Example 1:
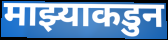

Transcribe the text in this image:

माझ्याकडुन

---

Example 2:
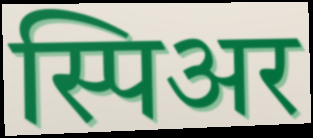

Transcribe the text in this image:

स्पिअर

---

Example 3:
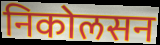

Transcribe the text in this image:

निकोलसन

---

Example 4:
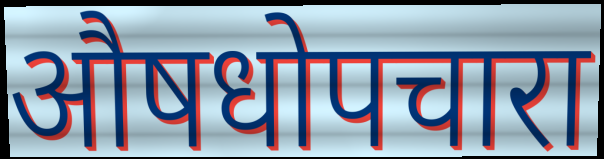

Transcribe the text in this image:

औषधोपचारा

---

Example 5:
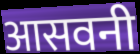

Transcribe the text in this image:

आसवनी